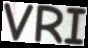
VRI